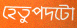
হেতুপদটো